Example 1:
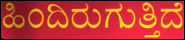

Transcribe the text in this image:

ಹಿಂದಿರುಗುತ್ತಿದೆ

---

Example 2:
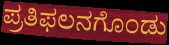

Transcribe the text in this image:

ಪ್ರತಿಫಲನಗೊಂಡು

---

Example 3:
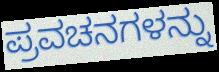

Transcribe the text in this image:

ಪ್ರವಚನಗಳನ್ನು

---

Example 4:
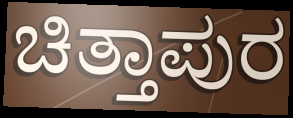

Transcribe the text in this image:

ಚಿತ್ತಾಪುರ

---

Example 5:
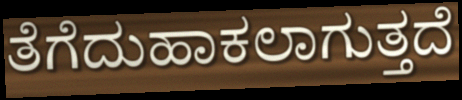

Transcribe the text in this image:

ತೆಗೆದುಹಾಕಲಾಗುತ್ತದೆ